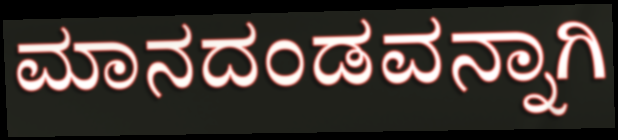
ಮಾನದಂಡವನ್ನಾಗಿ